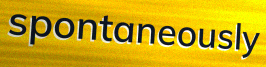
spontaneously